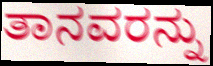
ತಾನವರನ್ನು